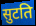
सुटति